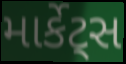
માર્કેટ્સ